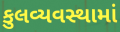
કુલવ્યવસ્થામાં